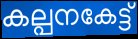
കല്പനകേട്ട്